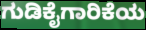
ಗುಡಿಕೈಗಾರಿಕೆಯ